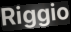
Riggio